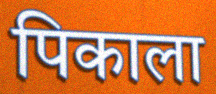
पिकाला